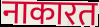
नाकारत